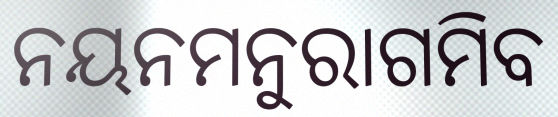
ନୟନମନୁରାଗମିବ